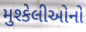
મુશ્કેલીઓનો